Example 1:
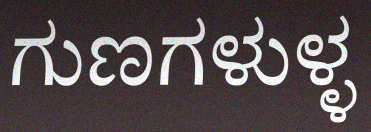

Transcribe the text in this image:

ಗುಣಗಳುಳ್ಳ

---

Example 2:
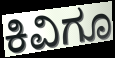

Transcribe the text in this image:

ಕಿವಿಗೂ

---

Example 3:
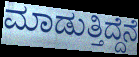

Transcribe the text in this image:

ಮಾಡುತ್ತಿದ್ದೆನೆ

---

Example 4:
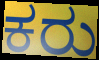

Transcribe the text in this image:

ಕರು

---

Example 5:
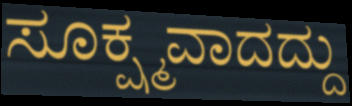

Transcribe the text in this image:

ಸೂಕ್ಷ್ಮವಾದದ್ದು